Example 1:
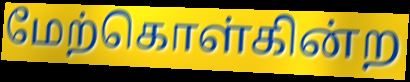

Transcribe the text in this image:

மேற்கொள்கின்ற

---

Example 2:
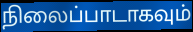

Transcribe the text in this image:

நிலைப்பாடாகவும்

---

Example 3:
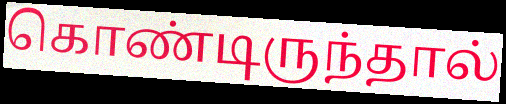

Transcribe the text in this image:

கொண்டிருந்தால்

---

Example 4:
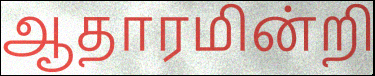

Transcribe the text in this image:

ஆதாரமின்றி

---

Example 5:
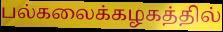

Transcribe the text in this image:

பல்கலைக்கழகத்தில்